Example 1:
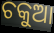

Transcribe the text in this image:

ଚକୁଆ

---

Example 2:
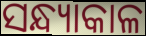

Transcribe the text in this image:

ସନ୍ଧ୍ୟାକାଳ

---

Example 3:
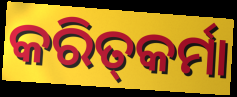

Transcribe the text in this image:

କରିତ୍‍କର୍ମା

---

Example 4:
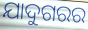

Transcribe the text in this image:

ଯାଦୁଗରର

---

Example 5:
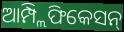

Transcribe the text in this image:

ଆମ୍ପ୍ଲିଫିକେସନ୍